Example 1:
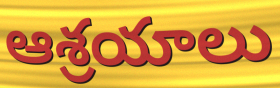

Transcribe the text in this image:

ఆశ్రయాలు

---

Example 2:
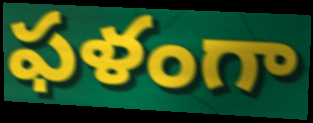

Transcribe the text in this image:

ఫళంగా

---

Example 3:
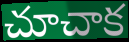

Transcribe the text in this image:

చూచాక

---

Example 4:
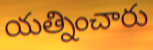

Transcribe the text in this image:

యత్నించారు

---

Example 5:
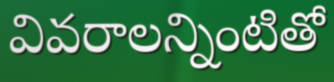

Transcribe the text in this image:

వివరాలన్నింటితో